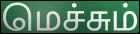
மெச்சும்